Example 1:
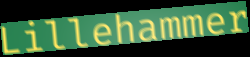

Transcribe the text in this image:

Lillehammer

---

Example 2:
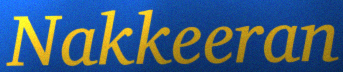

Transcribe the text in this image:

Nakkeeran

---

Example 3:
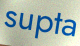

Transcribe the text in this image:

supta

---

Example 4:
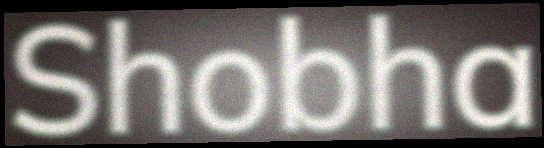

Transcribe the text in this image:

Shobha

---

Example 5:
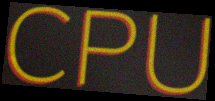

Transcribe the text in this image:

CPU